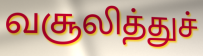
வசூலித்துச்